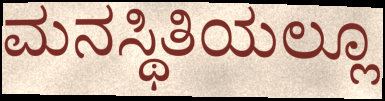
ಮನಸ್ಥಿತಿಯಲ್ಲೂ